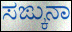
ಸಙ್ಕುನಾ